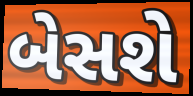
બેસશે